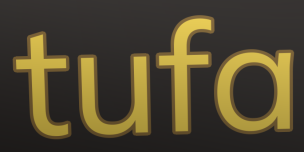
tufa